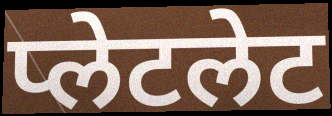
प्लेटलेट